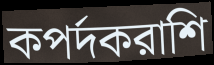
কপর্দকরাশি